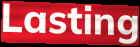
Lasting